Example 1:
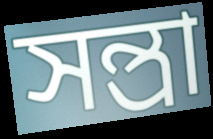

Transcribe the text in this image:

সন্ত্রা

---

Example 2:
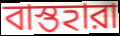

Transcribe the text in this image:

বাস্তহারা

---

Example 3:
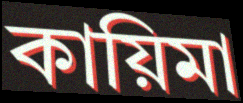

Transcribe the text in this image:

কায়িমা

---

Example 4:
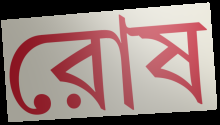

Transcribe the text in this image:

রোষ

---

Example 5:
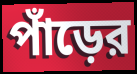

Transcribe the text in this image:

পাঁড়ের